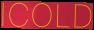
ICOLD